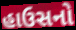
હાઉસનો